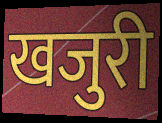
खजुरी